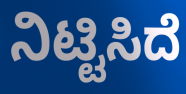
ನಿಟ್ಟಿಸಿದೆ